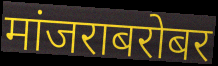
मांजराबरोबर